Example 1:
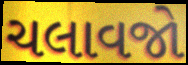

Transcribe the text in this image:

ચલાવજો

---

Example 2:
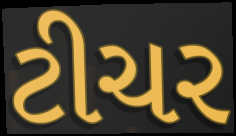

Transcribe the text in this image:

ટીચર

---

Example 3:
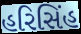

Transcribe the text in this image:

હરિસિંહ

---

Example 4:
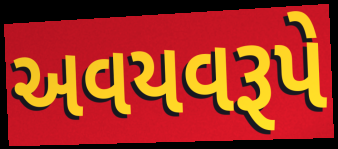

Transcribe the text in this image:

અવયવરૂપે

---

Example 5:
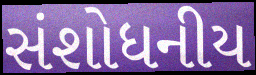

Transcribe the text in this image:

સંશોધનીય